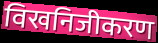
विखनिजीकरण